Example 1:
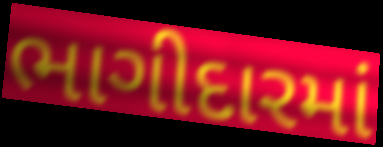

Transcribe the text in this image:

ભાગીદારમાં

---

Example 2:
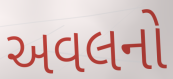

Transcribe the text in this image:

અવલનો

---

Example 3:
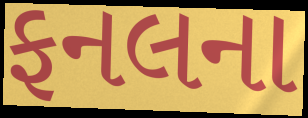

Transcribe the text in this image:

ફનલના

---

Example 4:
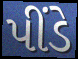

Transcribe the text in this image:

પીંડે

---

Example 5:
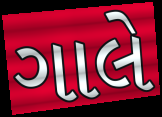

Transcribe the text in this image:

ગાલે